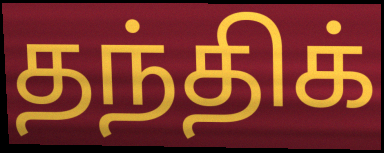
தந்திக்